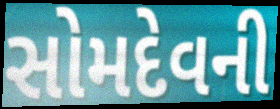
સોમદેવની